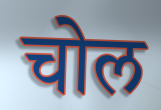
चोल